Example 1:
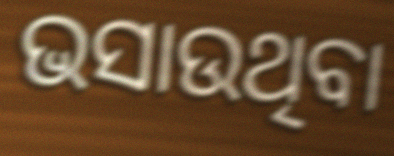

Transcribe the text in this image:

ଭସାଉଥିବା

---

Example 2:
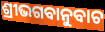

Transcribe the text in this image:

ଶ୍ରୀଭଗବାନୁବାଚ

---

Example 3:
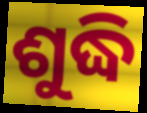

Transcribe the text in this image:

ଶୁଦ୍ଧି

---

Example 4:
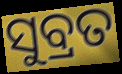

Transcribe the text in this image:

ସୁବ୍ରତ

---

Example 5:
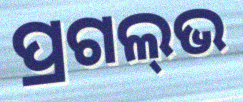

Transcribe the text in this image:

ପ୍ରଗଲ୍‌ଭ